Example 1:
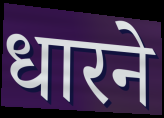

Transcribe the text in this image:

धारने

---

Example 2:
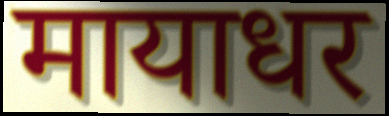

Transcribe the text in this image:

मायाधर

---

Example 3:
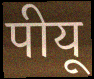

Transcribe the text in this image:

पीयू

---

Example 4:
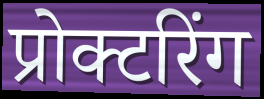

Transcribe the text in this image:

प्रोक्टरिंग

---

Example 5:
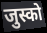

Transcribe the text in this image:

जुस्को